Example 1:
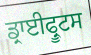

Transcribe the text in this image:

ਡ੍ਰਾਈਫ੍ਰੂਟਸ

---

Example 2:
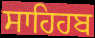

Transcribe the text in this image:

ਸਾਹਿਹਬ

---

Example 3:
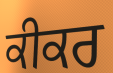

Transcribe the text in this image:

ਕੀਕਰ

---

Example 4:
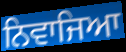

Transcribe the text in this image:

ਨਿਵਾਜਿਆ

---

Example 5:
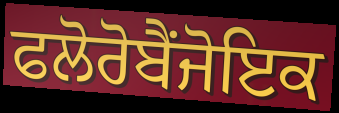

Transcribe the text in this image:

ਫਲੋਰੋਬੈਂਜੋਇਕ